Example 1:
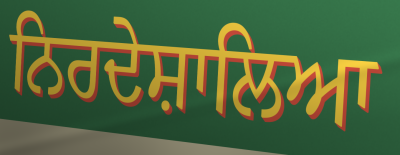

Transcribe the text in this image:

ਨਿਰਦੇਸ਼ਾਲਿਆ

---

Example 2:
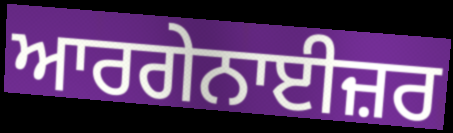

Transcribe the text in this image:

ਆਰਗੇਨਾਈਜ਼ਰ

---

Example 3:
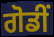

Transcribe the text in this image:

ਗੋਡੀਂ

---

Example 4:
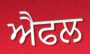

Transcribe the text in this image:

ਐਫਲ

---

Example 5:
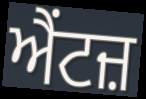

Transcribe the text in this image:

ਐਂਟਜ਼